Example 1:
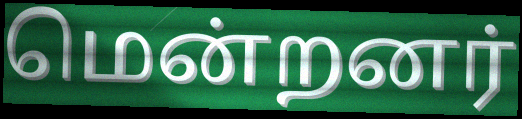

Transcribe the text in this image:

மென்றனர்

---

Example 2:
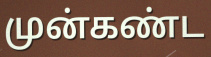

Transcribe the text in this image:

முன்கண்ட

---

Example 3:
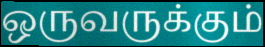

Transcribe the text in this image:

ஒருவருக்கும்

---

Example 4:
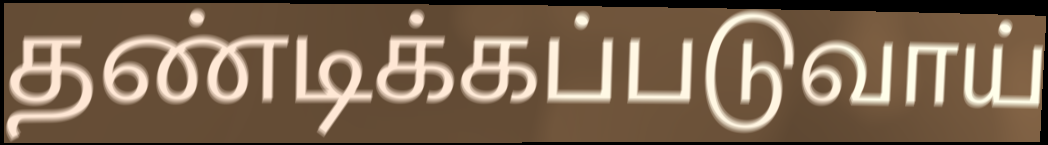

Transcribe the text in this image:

தண்டிக்கப்படுவாய்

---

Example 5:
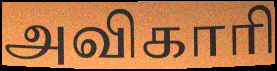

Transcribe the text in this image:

அவிகாரி